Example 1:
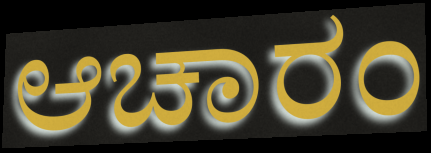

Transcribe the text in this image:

ಆಚಾರಂ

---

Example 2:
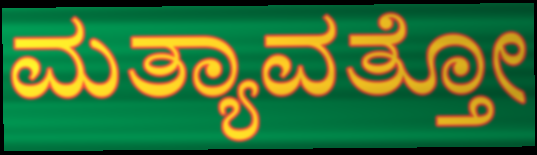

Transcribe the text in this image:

ಮತ್ಯಾವತ್ತೋ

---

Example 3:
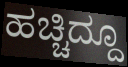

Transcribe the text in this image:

ಹಚ್ಚಿದ್ದೂ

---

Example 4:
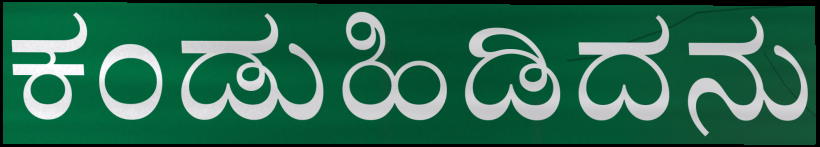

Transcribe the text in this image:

ಕಂಡುಹಿಡಿದನು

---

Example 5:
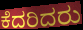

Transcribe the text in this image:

ಕೆದರಿದರು